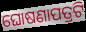
ଘୋଷଣାପତ୍ରଟି